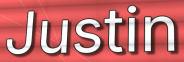
Justin